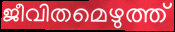
ജീവിതമെഴുത്ത്